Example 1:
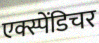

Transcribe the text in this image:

एक्स्पेंडिचर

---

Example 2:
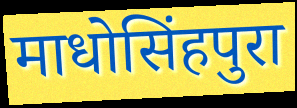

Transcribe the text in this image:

माधोसिंहपुरा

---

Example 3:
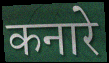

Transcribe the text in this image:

कनारे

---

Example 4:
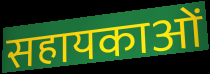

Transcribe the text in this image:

सहायकाओं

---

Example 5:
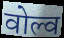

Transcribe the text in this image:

वोल्व